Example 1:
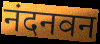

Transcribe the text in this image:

नंदनवन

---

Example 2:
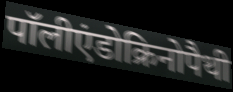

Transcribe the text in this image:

पॉलीएंडोक्रिनोपैथी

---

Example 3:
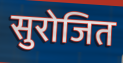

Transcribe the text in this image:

सुरोजित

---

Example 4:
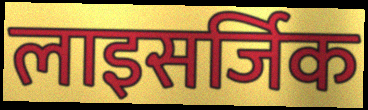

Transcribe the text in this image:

लाइसर्जिक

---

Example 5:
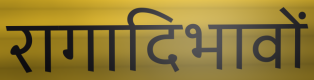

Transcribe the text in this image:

रागादिभावों